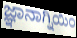
ಜ್ಞಾನಾಗ್ನಿಯಿಂ